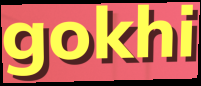
gokhi